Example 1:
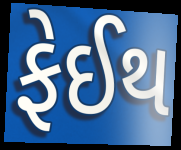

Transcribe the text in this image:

ફેઈથ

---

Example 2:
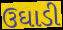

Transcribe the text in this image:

ઉઘાડી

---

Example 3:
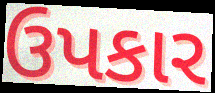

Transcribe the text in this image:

ઉપકાર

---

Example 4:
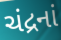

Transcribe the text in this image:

ચંદ્રનાં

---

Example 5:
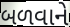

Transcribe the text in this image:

બળવાને